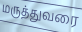
மருத்துவரை